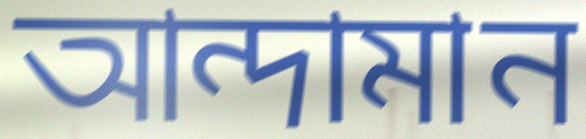
আন্দামান